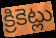
క్రికెట్లు